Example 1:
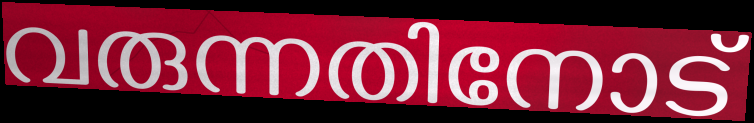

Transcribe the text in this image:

വരുന്നതിനോട്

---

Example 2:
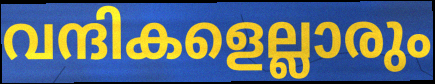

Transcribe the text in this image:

വന്ദികളെല്ലാരും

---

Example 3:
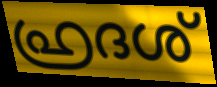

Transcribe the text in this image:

ഹ്രദശ്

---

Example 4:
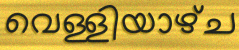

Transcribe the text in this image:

വെള്ളിയാഴ്‌ച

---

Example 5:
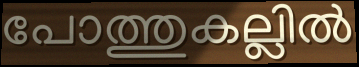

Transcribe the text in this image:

പോത്തുകല്ലിൽ